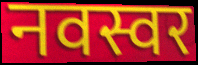
नवस्वर